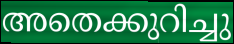
അതെക്കുറിച്ചു